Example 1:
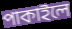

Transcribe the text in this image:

পাকাইলে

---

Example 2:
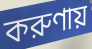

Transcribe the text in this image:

করুণায়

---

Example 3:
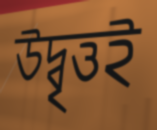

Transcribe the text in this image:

উদ্বৃত্তই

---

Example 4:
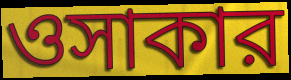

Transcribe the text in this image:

ওসাকার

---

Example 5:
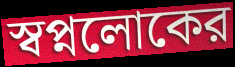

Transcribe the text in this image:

স্বপ্নলোকের